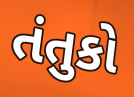
તંતુકો